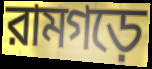
রামগড়ে